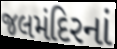
જલમંદિરનાં